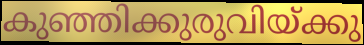
കുഞ്ഞിക്കുരുവിയ്ക്കു